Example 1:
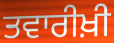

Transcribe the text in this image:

ਤਵਾਰੀਖ਼ੀ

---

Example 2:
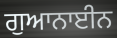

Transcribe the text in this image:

ਗੁਆਨਾਈਨ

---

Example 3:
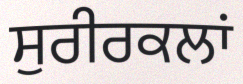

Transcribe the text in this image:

ਸੁਰੀਰਕਲਾਂ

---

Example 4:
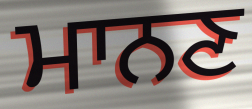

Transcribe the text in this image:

ਮਾਨਣ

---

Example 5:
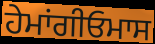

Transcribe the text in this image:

ਹੇਮਾਂਗੀਓਮਾਸ